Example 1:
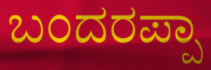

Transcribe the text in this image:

ಬಂದರಪ್ಪಾ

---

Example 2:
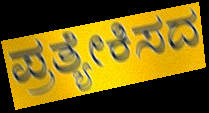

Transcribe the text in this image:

ಪ್ರತ್ಯೇಕಿಸದ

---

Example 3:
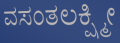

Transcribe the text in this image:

ವಸಂತಲಕ್ಷ್ಮೀ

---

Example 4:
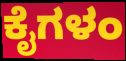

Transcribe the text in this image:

ಕೈಗಳಂ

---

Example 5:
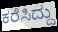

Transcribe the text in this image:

ಕರೆಸಿದ್ದು